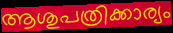
ആശുപത്രിക്കാര്യം